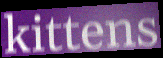
kittens